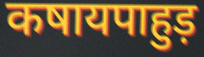
कषायपाहुड़